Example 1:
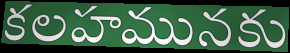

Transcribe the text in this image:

కలహమునకు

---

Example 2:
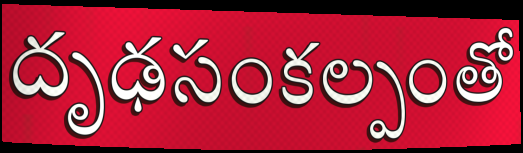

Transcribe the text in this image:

దృఢసంకల్పంతో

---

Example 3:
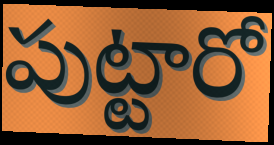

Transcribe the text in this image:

పుట్టారో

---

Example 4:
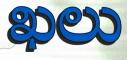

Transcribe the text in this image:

ఖలు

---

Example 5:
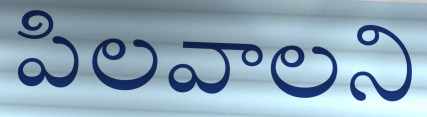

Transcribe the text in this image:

పిలవాలని